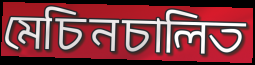
মেচিনচালিত